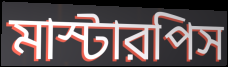
মাস্টারপিস